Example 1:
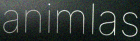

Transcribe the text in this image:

animlas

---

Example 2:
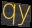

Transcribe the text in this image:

qy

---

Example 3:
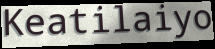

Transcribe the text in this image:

Keatilaiyo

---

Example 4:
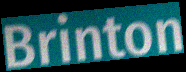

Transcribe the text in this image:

Brinton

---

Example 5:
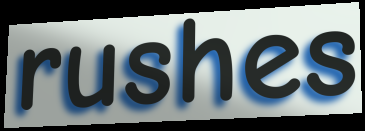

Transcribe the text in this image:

rushes